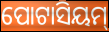
ପୋଟାସିୟମ୍